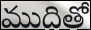
ముదితో